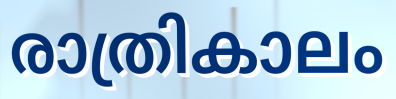
രാത്രികാലം